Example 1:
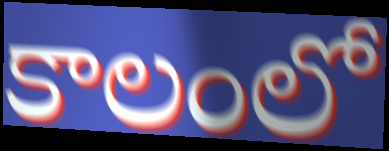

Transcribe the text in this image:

కాలంలో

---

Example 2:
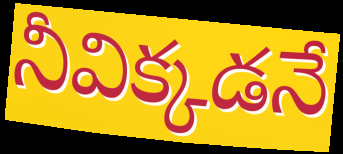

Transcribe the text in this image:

నీవిక్కడనే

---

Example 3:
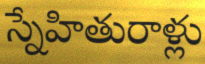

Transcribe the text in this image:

స్నేహితురాళ్లు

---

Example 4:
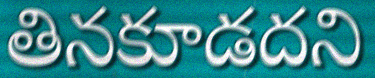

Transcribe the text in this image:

తినకూడదని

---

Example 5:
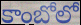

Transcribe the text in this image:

కాంబోలో